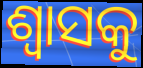
ଶ୍ଵାସକୁ